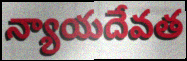
న్యాయదేవత